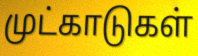
முட்காடுகள்